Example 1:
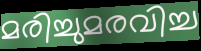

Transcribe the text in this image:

മരിച്ചുമരവിച്ച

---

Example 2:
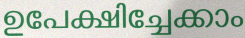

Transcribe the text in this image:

ഉപേക്ഷിച്ചേക്കാം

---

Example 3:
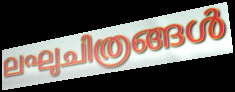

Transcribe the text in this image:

ലഘുചിത്രങ്ങൾ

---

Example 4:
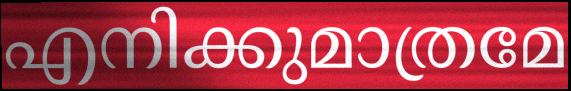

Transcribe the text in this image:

എനിക്കുമാത്രമേ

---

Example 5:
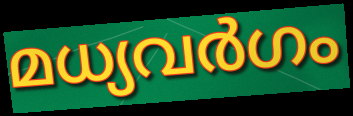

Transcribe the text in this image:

മധ്യവർഗം